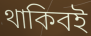
থাকিবই